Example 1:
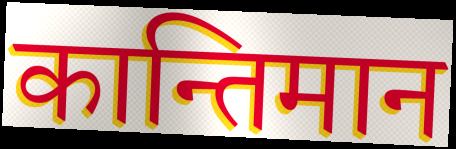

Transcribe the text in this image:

कान्तिमान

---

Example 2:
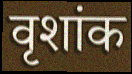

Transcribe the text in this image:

वृशांक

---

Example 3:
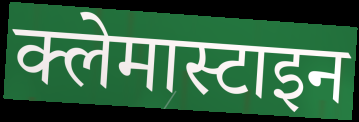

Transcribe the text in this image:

क्लेमास्टाइन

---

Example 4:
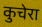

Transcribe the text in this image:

कुचेरा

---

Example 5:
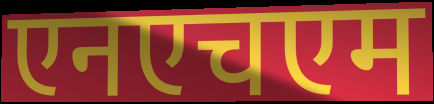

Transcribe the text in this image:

एनएचएम